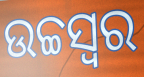
ଉଚ୍ଚସ୍ବର